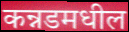
कन्नडमधील